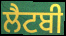
ਲੈਟਬੀ